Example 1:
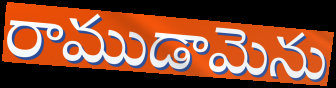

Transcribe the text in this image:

రాముడామెను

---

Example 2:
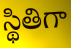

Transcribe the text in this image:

స్థితిగా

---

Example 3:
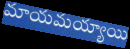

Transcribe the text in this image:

మాయమయ్యాయి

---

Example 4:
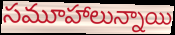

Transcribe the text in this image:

సమూహాలున్నాయి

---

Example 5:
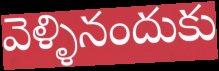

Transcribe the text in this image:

వెళ్ళినందుకు